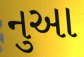
નુઆ